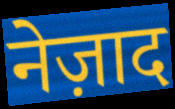
नेज़ाद